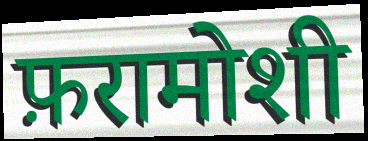
फ़रामोशी